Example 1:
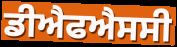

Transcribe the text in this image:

ਡੀਐਫਐਸਸੀ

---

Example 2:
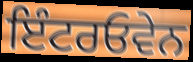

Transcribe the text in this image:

ਇੰਟਰਓਵੇਨ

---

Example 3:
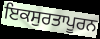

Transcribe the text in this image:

ਇਕਸੁਰਤਾਪੂਰਨ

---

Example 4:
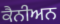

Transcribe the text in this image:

ਕੈਨੀਅਨ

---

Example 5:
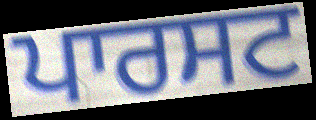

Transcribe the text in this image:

ਪਾਰਸਟ